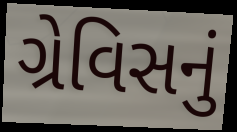
ગ્રેવિસનું